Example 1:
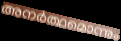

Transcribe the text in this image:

അനർത്ഥമൊന്നും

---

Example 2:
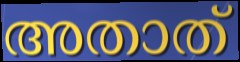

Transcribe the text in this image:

അതാത്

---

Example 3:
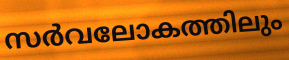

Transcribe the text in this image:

സർവലോകത്തിലും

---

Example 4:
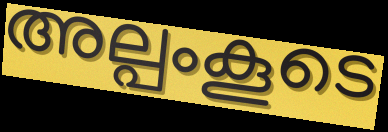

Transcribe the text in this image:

അല്പംകൂടെ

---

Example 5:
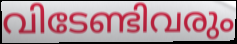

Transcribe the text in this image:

വിടേണ്ടിവരും